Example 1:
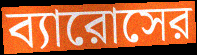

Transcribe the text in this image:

ব্যারোসের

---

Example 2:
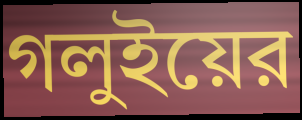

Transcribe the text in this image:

গলুইয়ের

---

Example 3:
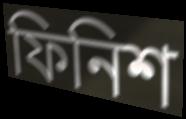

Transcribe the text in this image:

ফিনিশ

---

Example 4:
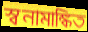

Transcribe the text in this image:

স্বনামাঙ্কিত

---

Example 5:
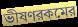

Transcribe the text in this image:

ভীষণরকমের